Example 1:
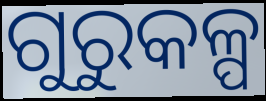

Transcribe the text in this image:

ଗୁରୁକଳ୍ପ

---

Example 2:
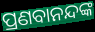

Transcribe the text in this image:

ପ୍ରଣବାନନ୍ଦଙ୍କ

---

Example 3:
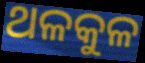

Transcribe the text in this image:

ଥଳକୁଳ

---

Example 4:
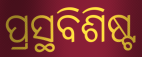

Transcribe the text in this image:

ପ୍ରସ୍ଥବିଶିଷ୍ଟ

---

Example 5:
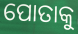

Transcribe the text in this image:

ପୋତାକୁ